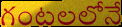
గంటలలోనే